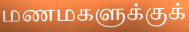
மணமகளுக்குக்